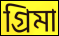
গ্রিমা